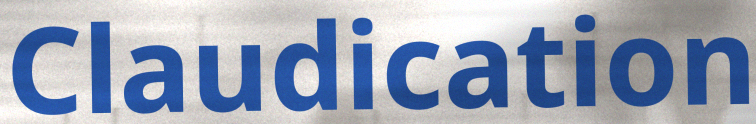
Claudication